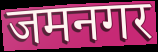
जमनगर